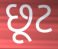
છૂટ